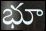
భూ